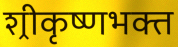
श्रीकृष्णभक्त